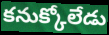
కనుక్కోలేడు